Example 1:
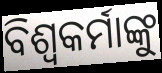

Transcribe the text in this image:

ବିଶ୍ଵକର୍ମାଙ୍କୁ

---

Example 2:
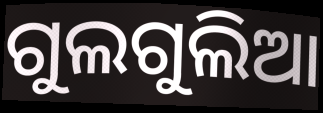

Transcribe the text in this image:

ଗୁଲଗୁଲିଆ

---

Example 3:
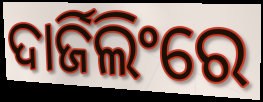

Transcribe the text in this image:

ଦାର୍ଜିଲିଂରେ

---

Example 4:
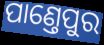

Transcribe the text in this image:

ପାଣ୍ତେପୁର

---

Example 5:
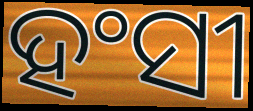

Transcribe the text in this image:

ହଂସୀ